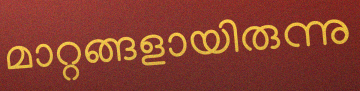
മാറ്റങ്ങളായിരുന്നു